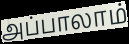
அப்பாலாம்